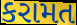
કરામત